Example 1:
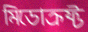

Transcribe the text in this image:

মিডোক্রফ্ট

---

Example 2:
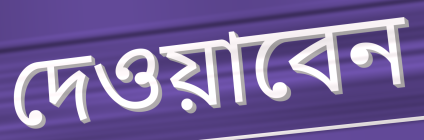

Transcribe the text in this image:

দেওয়াবেন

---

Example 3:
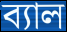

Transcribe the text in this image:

ব্যাল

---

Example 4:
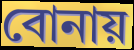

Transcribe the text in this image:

বোনায়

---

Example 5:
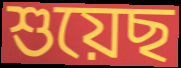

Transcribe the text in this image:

শুয়েছ